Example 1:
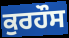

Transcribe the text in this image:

ਕੁਰਹੌਸ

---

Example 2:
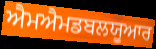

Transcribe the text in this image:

ਐਮਐਮਡਬਲਯੂਆਰ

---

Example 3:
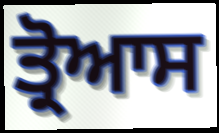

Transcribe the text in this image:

ਤ੍ਰੋਆਸ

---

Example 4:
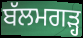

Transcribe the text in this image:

ਬੱਲਮਗੜ੍ਹ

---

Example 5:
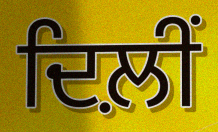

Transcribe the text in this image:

ਦਿਲ਼ੀਂ